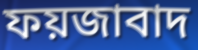
ফয়জাবাদ